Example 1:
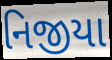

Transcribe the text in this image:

નિજીયા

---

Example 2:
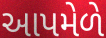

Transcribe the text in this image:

આપમેળે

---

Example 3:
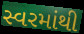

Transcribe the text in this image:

સ્વરમાંથી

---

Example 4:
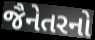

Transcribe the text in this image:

જૈનેતરનો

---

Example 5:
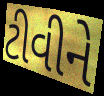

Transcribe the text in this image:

ટીવીને